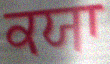
ਕਯਾ